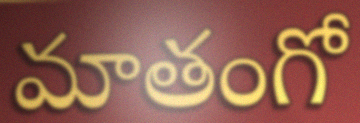
మాతంగో